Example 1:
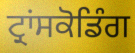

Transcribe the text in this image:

ਟ੍ਰਾਂਸਕੋਡਿੰਗ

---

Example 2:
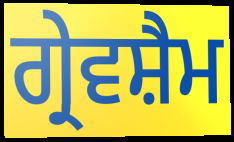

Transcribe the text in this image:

ਗ੍ਰੇਵਸ਼ੈਮ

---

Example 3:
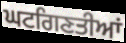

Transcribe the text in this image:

ਘਟਗਿਣਤੀਆਂ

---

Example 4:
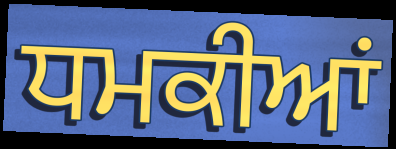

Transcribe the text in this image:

ਧਮਕੀਆਂ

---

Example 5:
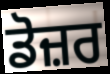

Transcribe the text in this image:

ਡੋਜ਼ਰ